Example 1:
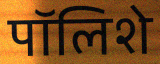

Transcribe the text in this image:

पॉलिशे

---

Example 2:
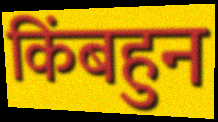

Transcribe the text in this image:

किंबहुन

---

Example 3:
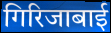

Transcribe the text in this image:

गिरिजाबाई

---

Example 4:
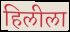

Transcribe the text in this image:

हिलीला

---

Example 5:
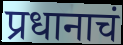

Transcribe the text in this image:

प्रधानाचं